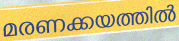
മരണക്കയത്തിൽ